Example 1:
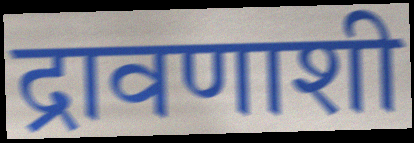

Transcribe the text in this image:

द्रावणाशी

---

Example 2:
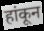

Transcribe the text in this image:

हांकून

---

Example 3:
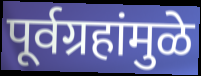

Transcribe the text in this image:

पूर्वग्रहांमुळे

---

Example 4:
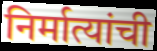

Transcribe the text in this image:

निर्मात्यांची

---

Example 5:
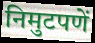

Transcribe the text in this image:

निमुटपणें